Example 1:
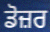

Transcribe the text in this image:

ਡੋਜ਼ਰ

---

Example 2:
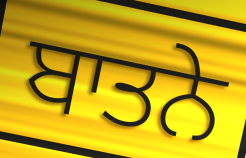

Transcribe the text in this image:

ਬਾਤਨੇ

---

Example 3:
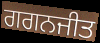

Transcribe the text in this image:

ਗਗਨਜੀਤ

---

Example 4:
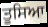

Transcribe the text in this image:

ਤੂਸਿਆ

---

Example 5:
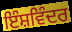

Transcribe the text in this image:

ਇੰਸ਼ਵਿੰਦਰ